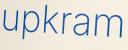
upkram